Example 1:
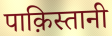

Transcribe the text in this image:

पाक़िस्तानी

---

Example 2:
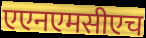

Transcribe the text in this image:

एएनएमसीएच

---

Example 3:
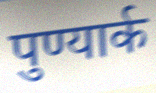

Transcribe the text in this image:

पुण्यार्क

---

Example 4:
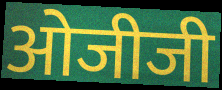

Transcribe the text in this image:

ओजीजी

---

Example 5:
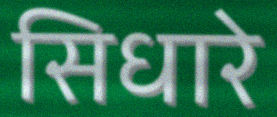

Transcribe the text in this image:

सिधारे